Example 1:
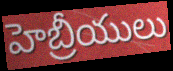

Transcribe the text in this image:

హెబ్రీయులు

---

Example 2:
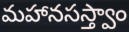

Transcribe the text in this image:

మహానసస్త్వాం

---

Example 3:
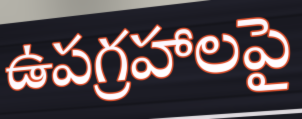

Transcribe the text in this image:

ఉపగ్రహాలపై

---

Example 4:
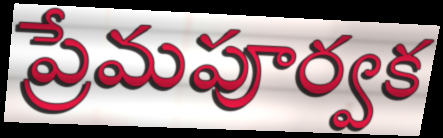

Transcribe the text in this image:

ప్రేమపూర్వక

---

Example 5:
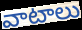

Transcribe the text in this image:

వాటాలు